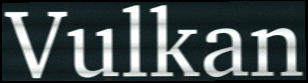
Vulkan